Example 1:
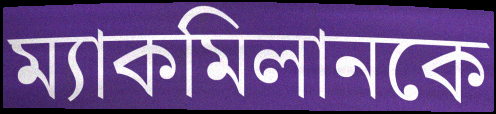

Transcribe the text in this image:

ম্যাকমিলানকে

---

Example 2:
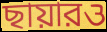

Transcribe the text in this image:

ছায়ারও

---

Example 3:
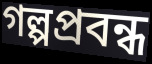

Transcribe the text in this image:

গল্পপ্রবন্ধ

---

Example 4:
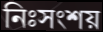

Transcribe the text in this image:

নিঃসংশয়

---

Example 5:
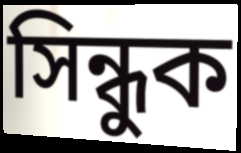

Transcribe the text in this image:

সিন্ধুক